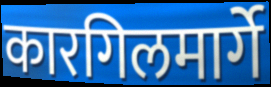
कारगिलमार्गे